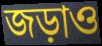
জড়াও